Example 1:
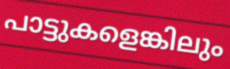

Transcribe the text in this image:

പാട്ടുകളെങ്കിലും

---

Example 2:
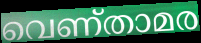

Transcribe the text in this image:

വെണ്താമര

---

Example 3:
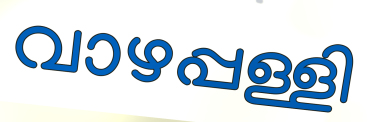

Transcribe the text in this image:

വാഴപ്പള്ളി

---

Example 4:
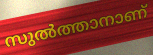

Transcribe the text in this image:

സുൽത്താനാണ്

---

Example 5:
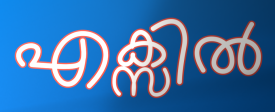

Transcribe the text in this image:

എക്സിൽ